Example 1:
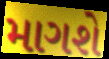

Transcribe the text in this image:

માગશે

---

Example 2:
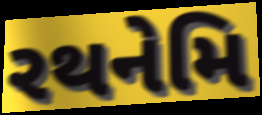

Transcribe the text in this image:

રથનેમિ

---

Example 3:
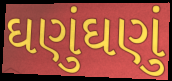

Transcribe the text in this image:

ઘણુંઘણું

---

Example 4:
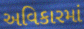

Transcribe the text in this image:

અવિકારમાં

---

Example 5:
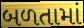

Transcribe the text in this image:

બળતામાં